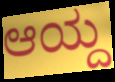
ಆಯ್ದ